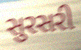
સુરસરી